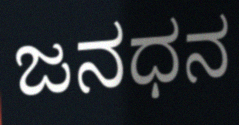
ಜನಧನ